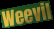
Weevil